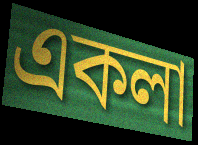
একলা